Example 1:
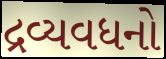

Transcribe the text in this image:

દ્રવ્યવધનો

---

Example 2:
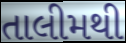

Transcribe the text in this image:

તાલીમથી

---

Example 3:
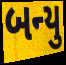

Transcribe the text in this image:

બન્યુ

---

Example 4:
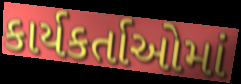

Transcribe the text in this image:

કાર્યકર્તાઓમાં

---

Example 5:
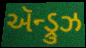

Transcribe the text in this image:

ઍન્ડ્રુઝ